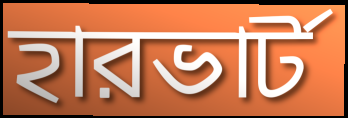
হারভার্ট